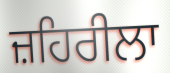
ਜ਼ਹਿਰੀਲਾ